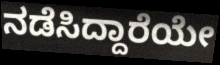
ನಡೆಸಿದ್ದಾರೆಯೇ